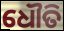
ଧୌତି